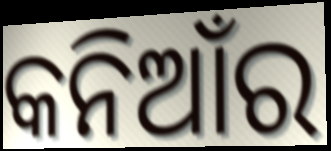
କନିଆଁର